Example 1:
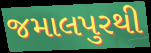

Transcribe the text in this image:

જમાલપુરથી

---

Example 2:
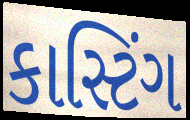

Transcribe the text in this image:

કાસ્ટિંગ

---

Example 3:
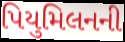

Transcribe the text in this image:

પિયુમિલનની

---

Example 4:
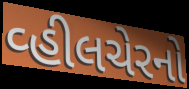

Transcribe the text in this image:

વ્હીલચેરનો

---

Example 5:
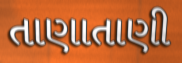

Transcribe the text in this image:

તાણાતાણી